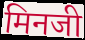
मिनजी